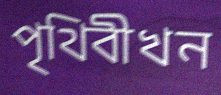
পৃথিবীখন